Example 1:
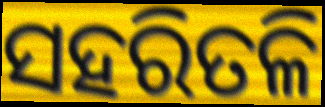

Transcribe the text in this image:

ସହରିତଳି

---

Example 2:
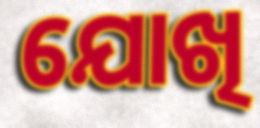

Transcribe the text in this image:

ଯୋଖି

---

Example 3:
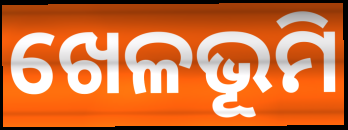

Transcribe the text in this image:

ଖେଳଭୂମି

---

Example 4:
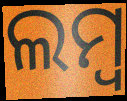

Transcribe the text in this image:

ଲମ୍ୱ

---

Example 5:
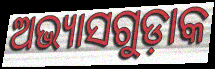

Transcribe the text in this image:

ଅଭ୍ୟାସଗୁଡ଼ାକ